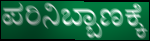
ಪರಿನಿಬ್ಬಾಣಕ್ಕೆ